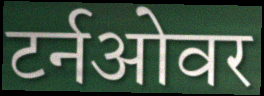
टर्नओवर